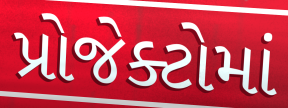
પ્રોજેક્ટોમાં